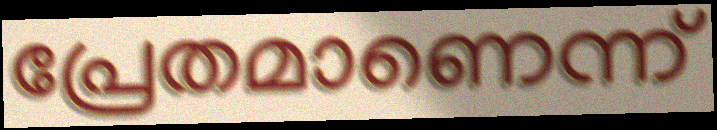
പ്രേതമാണെന്ന്